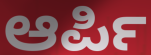
ಆರ್ಪಿ